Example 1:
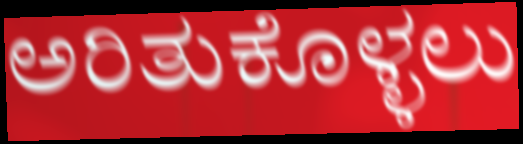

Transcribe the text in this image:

ಅರಿತುಕೊಳ್ಳಲು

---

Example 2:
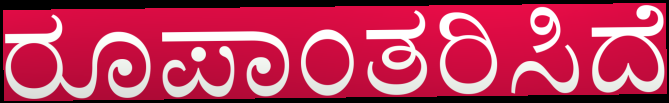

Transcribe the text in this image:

ರೂಪಾಂತರಿಸಿದೆ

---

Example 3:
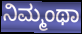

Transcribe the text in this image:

ನಿಮ್ಮಂಥಾ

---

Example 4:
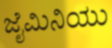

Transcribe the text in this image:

ಜೈಮಿನಿಯು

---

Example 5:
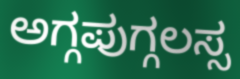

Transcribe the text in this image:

ಅಗ್ಗಪುಗ್ಗಲಸ್ಸ